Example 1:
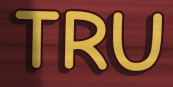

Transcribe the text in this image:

TRU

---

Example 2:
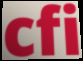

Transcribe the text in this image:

cfi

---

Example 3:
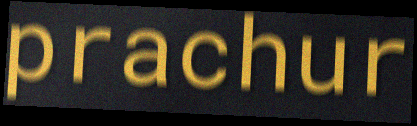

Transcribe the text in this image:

prachur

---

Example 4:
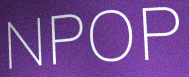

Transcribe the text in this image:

NPOP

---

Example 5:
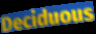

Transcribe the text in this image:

Deciduous